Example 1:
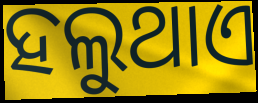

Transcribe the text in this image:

ହଲୁଥାଏ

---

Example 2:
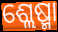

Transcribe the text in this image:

ଶ୍ଲେଷ୍ମା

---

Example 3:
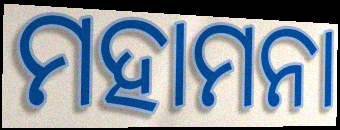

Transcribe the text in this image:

ମହାମନା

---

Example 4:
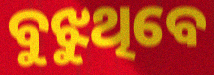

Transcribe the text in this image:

ବୁଝୁଥିବେ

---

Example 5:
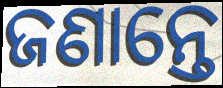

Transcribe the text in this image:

ଜଣାନ୍ତେ